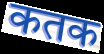
कतक